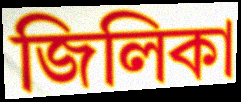
জিলিকা